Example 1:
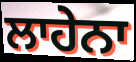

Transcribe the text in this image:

ਲਾਹੇਨਾ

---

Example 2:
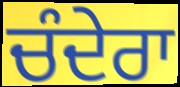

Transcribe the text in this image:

ਚੰਦੇਰਾ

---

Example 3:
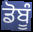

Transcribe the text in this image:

ਡੋਬੂੰ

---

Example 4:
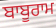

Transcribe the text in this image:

ਬਾਬੂਰਾਮ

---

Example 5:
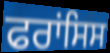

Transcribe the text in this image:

ਫਰਾਂਸਿਸ